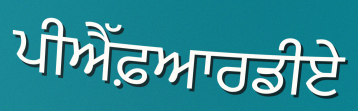
ਪੀਐੱਫ਼ਆਰਡੀਏ